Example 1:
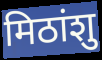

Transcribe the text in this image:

मिठांशु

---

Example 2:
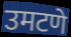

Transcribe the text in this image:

उमटणे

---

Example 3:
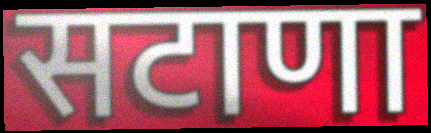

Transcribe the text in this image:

सटाणा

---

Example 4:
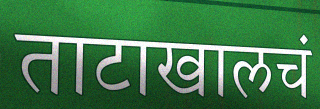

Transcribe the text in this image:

ताटाखालचं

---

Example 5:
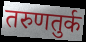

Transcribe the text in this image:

तरुणतुर्क